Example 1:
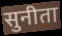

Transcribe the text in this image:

सुनीता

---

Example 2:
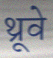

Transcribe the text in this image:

थ्रूवे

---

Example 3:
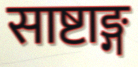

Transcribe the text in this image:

साष्टाङ्ग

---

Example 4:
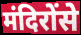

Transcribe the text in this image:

मंदिरोंसे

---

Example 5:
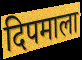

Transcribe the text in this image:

दिपमाला